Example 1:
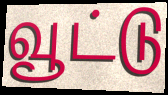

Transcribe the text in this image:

வூட்டு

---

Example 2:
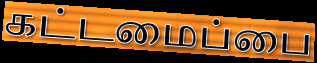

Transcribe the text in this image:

கட்டமைப்பை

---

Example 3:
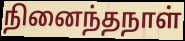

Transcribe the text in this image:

நினைந்தநாள்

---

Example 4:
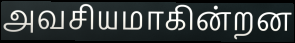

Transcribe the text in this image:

அவசியமாகின்றன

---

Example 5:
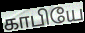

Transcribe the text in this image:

காபியே